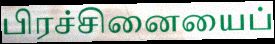
பிரச்சினையைப்